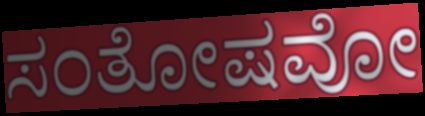
ಸಂತೋಷವೋ